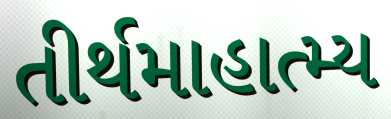
તીર્થમાહાત્મ્ય